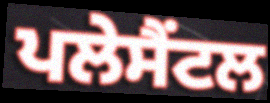
ਪਲੇਸੈਂਟਲ